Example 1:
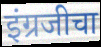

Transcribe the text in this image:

इंग्रजीचा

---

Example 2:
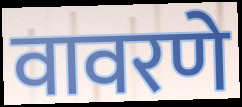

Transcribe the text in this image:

वावरणे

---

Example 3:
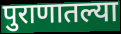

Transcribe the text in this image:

पुराणातल्या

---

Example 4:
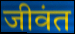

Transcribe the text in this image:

जीवंत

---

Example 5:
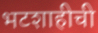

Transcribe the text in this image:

भटशाहीची